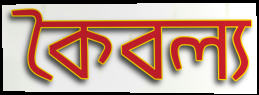
কৈবল্য